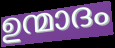
ഉന്മാദം